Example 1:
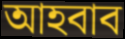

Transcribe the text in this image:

আহবাব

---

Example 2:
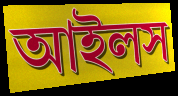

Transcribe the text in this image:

আইলস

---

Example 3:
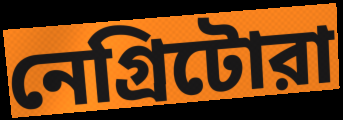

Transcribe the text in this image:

নেগ্রিটোরা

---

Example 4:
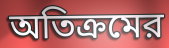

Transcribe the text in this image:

অতিক্রমের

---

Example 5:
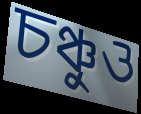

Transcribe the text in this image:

চঞ্চুও